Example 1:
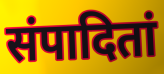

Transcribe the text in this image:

संपादितां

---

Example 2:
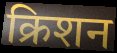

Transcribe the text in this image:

क्रिशन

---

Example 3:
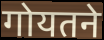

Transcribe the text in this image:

गोयतने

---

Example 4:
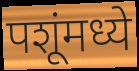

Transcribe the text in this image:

पशूंमध्ये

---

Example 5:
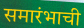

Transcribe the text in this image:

समारंभाची